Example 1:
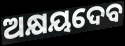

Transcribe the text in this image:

ଅକ୍ଷୟଦେବ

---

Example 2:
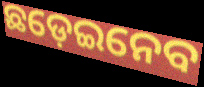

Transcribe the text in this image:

ଛଡ଼େଇନେବ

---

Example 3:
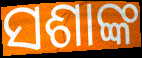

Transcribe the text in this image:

ସଶାଙ୍କ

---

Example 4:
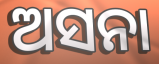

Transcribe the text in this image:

ଅସନା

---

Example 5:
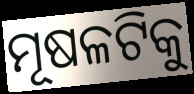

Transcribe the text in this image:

ମୂଷଳଟିକୁ